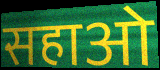
सहाओ